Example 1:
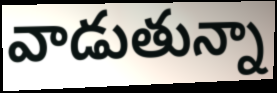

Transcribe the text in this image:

వాడుతున్నా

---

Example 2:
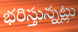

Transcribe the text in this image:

భరిస్తున్నట్లు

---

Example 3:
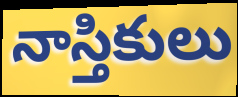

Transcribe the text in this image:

నాస్తికులు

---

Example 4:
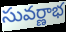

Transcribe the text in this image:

సువర్ణాభ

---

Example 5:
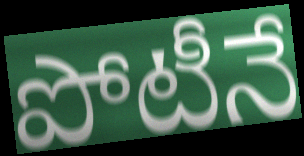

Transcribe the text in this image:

పోటీనే